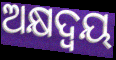
ଅକ୍ଷଦ୍ବୟ